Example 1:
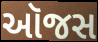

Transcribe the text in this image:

ઑજસ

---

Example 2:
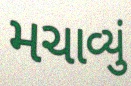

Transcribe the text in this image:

મચાવ્યું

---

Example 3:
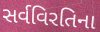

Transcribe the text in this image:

સર્વવિરતિના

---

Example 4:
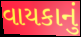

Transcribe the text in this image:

વાયકાનું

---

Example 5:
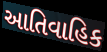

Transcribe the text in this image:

આતિવાહિક